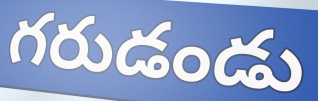
గరుడండు